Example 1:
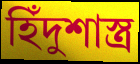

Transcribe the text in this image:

হিঁদুশাস্ত্র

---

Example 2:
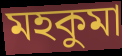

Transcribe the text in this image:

মহকুমা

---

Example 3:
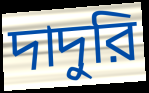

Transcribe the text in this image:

দাদুরি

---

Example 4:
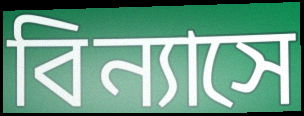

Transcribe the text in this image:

বিন্যাসে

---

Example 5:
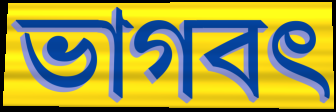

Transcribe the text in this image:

ভাগবৎ